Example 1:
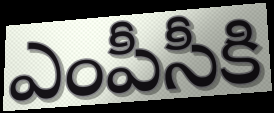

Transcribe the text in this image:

ఎంపీసీకి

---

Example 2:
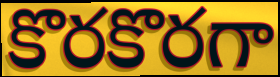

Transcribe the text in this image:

కొరకొరగా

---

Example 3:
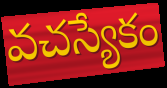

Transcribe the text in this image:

వచస్యేకం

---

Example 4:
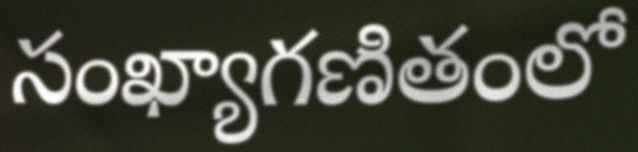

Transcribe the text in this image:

సంఖ్యాగణితంలో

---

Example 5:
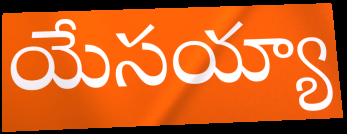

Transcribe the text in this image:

యేసయ్యా